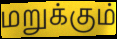
மறுக்கும்